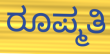
ರೂಪ್ಮತಿ